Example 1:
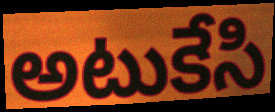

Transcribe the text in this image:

అటుకేసి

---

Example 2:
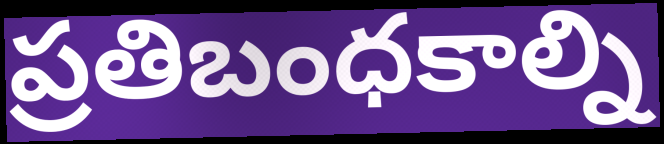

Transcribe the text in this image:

ప్రతిబంధకాల్ని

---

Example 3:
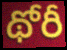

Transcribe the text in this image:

థోరీ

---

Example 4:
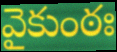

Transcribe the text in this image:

వైకుంఠః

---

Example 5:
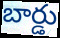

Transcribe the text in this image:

బార్డు